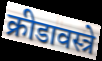
क्रीडावस्त्रे